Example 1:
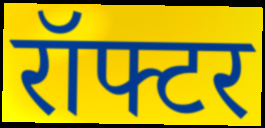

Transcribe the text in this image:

रॉफ्टर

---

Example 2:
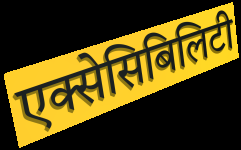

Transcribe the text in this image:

एक्सेसिबिलिटी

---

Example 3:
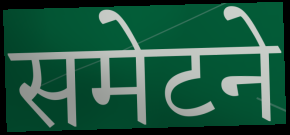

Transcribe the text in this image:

समेटने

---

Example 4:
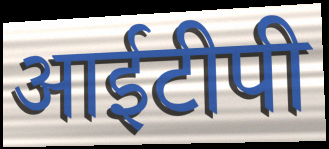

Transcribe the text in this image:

आईटीपी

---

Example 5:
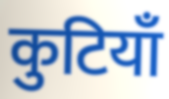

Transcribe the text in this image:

कुटियाँ